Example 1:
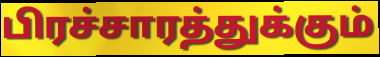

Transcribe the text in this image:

பிரச்சாரத்துக்கும்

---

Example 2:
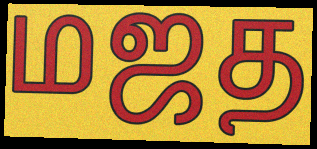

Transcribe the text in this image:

மஜத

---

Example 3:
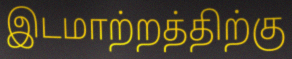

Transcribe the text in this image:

இடமாற்றத்திற்கு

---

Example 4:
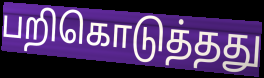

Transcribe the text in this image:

பறிகொடுத்தது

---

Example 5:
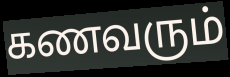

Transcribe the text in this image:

கணவரும்